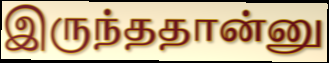
இருந்ததான்னு